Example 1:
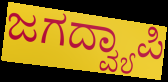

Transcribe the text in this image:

ಜಗದ್ವ್ಯಾಪಿ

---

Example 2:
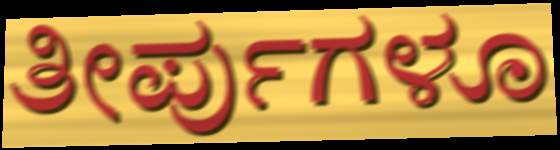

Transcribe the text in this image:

ತೀರ್ಪುಗಳೂ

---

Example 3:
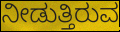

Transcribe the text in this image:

ನೀಡುತ್ತಿರುವ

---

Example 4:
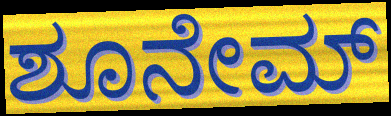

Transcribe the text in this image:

ಶೂನೇಮ್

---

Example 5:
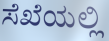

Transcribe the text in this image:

ಸೆಖೆಯಲ್ಲಿ